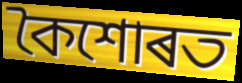
কৈশোৰত